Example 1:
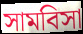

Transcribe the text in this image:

সামবিসা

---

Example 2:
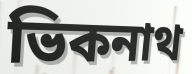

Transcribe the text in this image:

ভিকনাথ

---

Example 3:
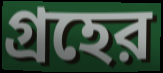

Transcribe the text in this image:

গ্রহের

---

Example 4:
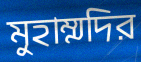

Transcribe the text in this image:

মুহাম্মদির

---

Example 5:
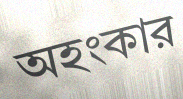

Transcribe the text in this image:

অহংকার